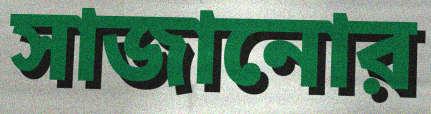
সাজানোর